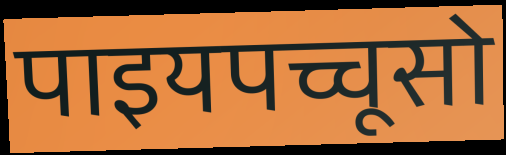
पाइयपच्चूसो